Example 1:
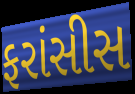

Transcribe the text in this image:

ફરાંસીસ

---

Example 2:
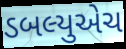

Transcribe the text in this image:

ડબલ્યુએચ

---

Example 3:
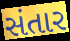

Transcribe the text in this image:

સંતાર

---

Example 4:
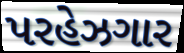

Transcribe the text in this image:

પરહેઝગાર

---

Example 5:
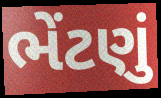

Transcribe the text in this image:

ભેંટણું